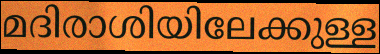
മദിരാശിയിലേക്കുള്ള